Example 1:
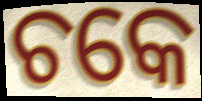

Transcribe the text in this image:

ଚକେ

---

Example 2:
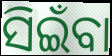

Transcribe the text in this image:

ସିଇଁବା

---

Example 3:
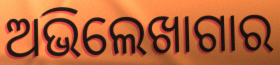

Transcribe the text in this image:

ଅଭିଲେଖାଗାର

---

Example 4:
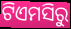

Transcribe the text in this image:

ଟିଏମସିରୁ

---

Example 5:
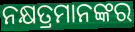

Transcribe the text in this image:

ନକ୍ଷତ୍ରମାନଙ୍କର